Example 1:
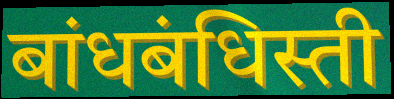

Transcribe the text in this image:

बांधबंधिस्ती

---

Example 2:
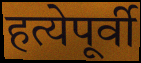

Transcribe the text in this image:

हत्येपूर्वी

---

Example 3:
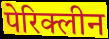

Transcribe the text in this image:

पेरिक्लीन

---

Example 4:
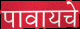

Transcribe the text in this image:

पावायचे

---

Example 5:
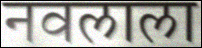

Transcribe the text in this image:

नवलाला